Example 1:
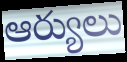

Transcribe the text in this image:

ఆర్యులు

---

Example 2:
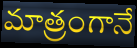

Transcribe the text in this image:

మాత్రంగానే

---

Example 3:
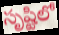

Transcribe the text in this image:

సృష్టిలో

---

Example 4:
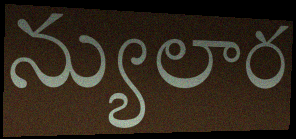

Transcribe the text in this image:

న్యులార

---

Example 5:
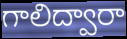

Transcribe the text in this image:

గాలిద్వారా